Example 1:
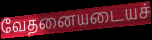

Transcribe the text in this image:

வேதனையடையச்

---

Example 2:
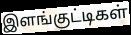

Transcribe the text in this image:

இளங்குட்டிகள்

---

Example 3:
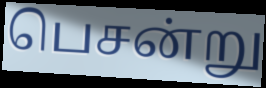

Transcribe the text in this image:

பெசன்று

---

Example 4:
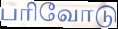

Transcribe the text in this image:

பரிவோடு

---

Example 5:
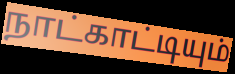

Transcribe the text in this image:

நாட்காட்டியும்